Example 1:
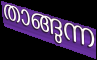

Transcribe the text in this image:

താങ്ങുന്ന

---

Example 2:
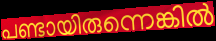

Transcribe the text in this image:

പണ്ടായിരുന്നെങ്കിൽ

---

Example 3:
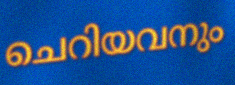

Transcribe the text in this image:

ചെറിയവനും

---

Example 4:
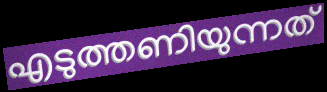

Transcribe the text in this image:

എടുത്തണിയുന്നത്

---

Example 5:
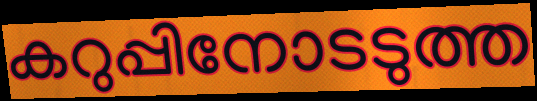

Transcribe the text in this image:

കറുപ്പിനോടടുത്ത